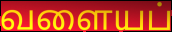
வளையப்